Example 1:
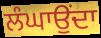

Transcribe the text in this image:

ਲੰਘਾਉਂਦਾ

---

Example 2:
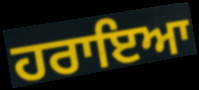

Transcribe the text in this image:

ਹਰਾਇਆ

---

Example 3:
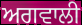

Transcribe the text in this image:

ਅਗਵਾਲੀ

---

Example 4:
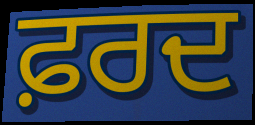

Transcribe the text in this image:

ਫ਼ਰਦ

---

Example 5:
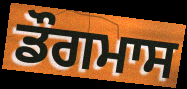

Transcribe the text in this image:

ਡੌਗਮਾਸ